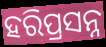
ହରିପ୍ରସନ୍ନ